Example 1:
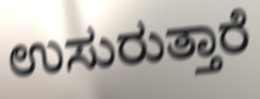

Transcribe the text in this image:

ಉಸುರುತ್ತಾರೆ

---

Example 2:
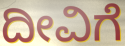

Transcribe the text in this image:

ದೀವಿಗೆ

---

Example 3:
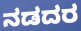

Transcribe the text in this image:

ನಡದರ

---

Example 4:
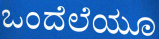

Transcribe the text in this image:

ಒಂದೆಲೆಯೂ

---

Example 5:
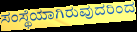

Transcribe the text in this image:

ಸಂಸ್ಥೆಯಾಗಿರುವುದರಿಂದ